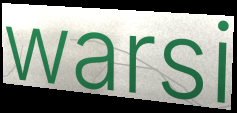
warsi